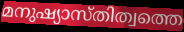
മനുഷ്യാസ്തിത്വത്തെ